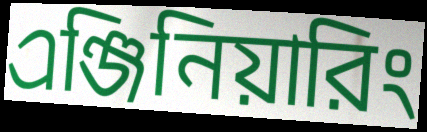
এঞ্জিনিয়ারিং